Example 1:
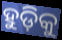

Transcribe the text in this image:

ହୁଡ଼ିକୁ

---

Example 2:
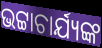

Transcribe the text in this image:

ଭଟ୍ଟାଚାର୍ଯ୍ୟଙ୍କ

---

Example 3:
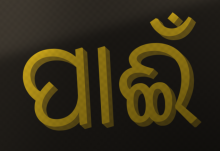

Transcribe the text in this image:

ପାଈଁ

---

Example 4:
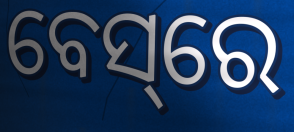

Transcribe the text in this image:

ବେସ୍‌ରେ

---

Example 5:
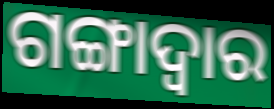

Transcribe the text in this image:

ଗଙ୍ଗାଦ୍ୱାର